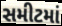
સમીટમાં